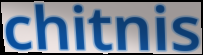
chitnis